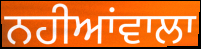
ਨਹੀਆਂਵਾਲਾ